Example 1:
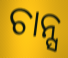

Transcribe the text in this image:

ଚାନ୍ସ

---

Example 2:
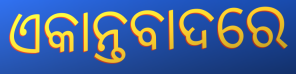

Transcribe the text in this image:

ଏକାନ୍ତବାଦରେ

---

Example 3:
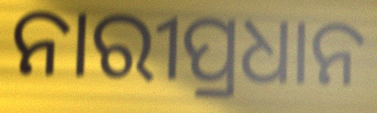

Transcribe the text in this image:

ନାରୀପ୍ରଧାନ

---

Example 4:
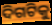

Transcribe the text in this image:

ଦିଗଟିକୁ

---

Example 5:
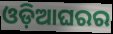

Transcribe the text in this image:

ଓଡ଼ିଆଘରର